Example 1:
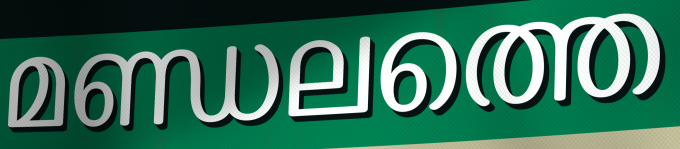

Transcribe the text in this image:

മണ്ഡലത്തെ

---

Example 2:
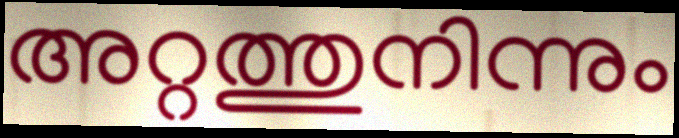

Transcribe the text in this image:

അറ്റത്തുനിന്നും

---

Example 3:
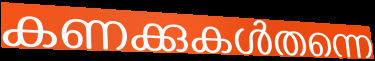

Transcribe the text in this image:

കണക്കുകൾതന്നെ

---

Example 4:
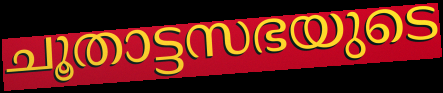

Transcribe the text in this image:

ചൂതാട്ടസഭയുടെ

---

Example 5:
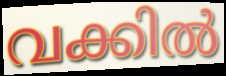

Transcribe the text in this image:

വക്കിൽ